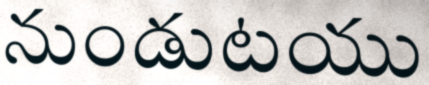
నుండుటయు